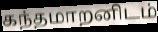
கந்தமாறனிடம்